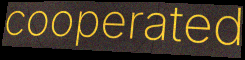
cooperated